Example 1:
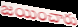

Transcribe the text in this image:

జయించారు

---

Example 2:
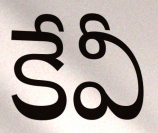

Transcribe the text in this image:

కేవీ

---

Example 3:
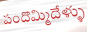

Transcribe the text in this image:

పందొమ్మిదేళ్ళు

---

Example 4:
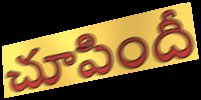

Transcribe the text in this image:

చూపిందీ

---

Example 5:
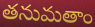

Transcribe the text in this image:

తనుమతాం